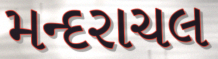
મન્દરાચલ